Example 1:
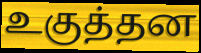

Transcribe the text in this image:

உகுத்தன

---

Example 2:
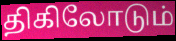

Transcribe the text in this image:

திகிலோடும்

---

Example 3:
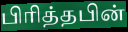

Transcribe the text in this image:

பிரித்தபின்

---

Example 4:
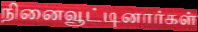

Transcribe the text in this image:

நினைவூட்டினார்கள்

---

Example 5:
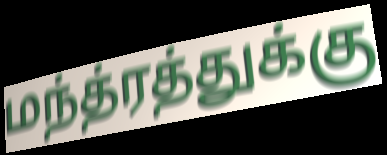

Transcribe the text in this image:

மந்த்ரத்துக்கு